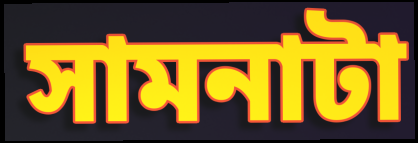
সামনাটা